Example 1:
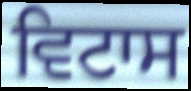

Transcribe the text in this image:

ਵਿਟਾਸ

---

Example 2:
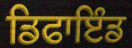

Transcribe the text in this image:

ਡਿਫਾਇੰਡ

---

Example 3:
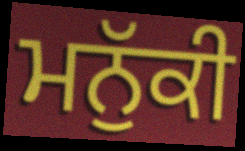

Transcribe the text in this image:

ਮਨੁੱਕੀ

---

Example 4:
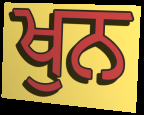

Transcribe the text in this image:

ਖੁਨ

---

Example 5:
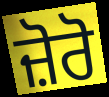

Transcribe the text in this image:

ਜ਼ੋਰੋ